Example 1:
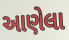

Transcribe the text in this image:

આણેલા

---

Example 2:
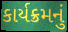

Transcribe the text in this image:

કાર્યક્રમનું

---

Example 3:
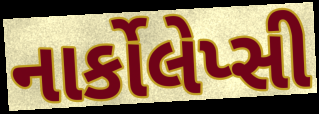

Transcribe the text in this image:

નાર્કોલેપ્સી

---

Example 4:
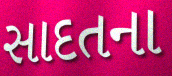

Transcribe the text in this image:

સાદતના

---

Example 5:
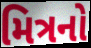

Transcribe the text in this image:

મિત્રનો